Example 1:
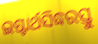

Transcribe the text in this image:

ଇଷ୍ଟାର୍ଥସିଦ୍ଧରସ୍ତୁ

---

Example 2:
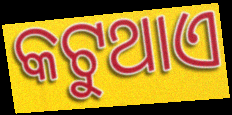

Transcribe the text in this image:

କଟୁଥାଏ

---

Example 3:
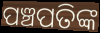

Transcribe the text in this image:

ପଞ୍ଚପତିଙ୍କ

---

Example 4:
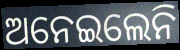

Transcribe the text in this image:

ଅନେଇଲେନି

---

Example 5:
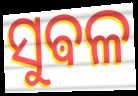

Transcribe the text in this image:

ସୁଵଳ